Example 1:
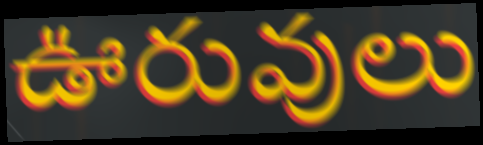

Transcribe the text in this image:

ఊరువులు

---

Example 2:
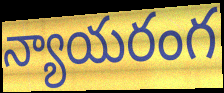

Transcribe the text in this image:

న్యాయరంగ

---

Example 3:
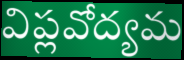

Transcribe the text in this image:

విప్లవోద్యమ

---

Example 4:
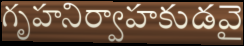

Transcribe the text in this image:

గృహనిర్వాహకుడవై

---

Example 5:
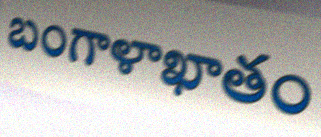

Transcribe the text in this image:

బంగాళాఖాతం